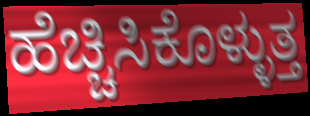
ಹೆಚ್ಚಿಸಿಕೊಳ್ಳುತ್ತ